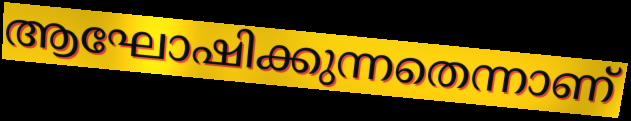
ആഘോഷിക്കുന്നതെന്നാണ്